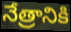
నేత్రానికి